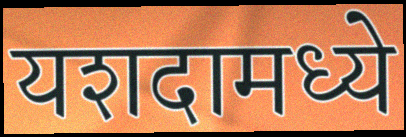
यशदामध्ये